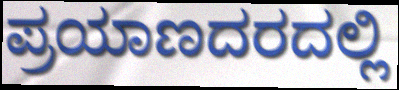
ಪ್ರಯಾಣದರದಲ್ಲಿ